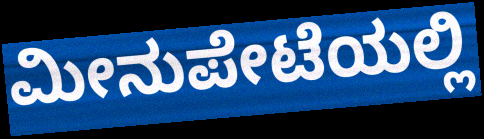
ಮೀನುಪೇಟೆಯಲ್ಲಿ